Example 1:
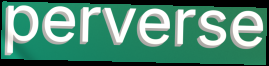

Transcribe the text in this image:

perverse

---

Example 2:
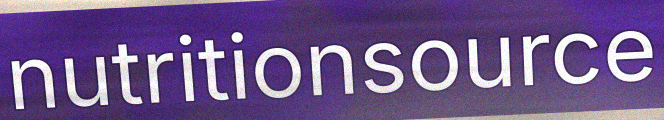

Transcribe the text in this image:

nutritionsource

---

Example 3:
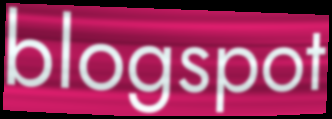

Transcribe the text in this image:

blogspot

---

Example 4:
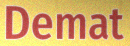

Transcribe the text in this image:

Demat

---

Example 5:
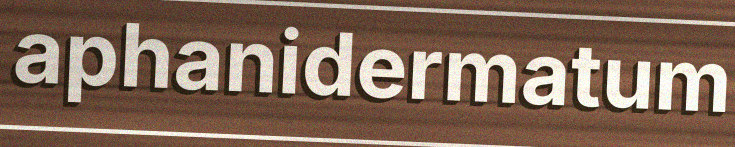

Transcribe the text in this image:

aphanidermatum